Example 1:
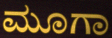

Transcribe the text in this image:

ಮೂಗಾ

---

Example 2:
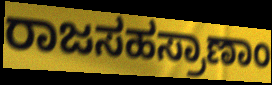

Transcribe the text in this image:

ರಾಜಸಹಸ್ರಾಣಾಂ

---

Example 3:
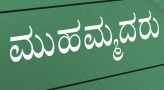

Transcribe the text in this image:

ಮುಹಮ್ಮದರು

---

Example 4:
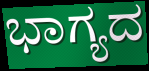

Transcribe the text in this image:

ಭಾಗ್ಯದ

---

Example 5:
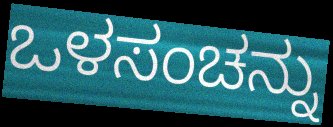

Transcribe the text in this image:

ಒಳಸಂಚನ್ನು